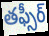
తఫ్సీర్